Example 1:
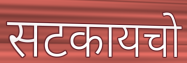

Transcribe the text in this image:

सटकायचो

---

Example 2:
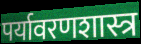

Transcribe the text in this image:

पर्यावरणशास्त्र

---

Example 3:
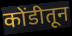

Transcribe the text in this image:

कोंडीतून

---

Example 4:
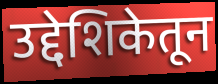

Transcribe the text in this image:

उद्देशिकेतून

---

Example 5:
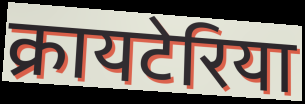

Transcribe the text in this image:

क्रायटेरिया